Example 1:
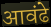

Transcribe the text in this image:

आवंढे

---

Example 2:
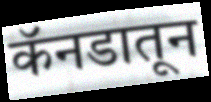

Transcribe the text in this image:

कॅनडातून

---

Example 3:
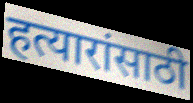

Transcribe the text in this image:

हत्यारांसाठी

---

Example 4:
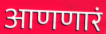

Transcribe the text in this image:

आणणारं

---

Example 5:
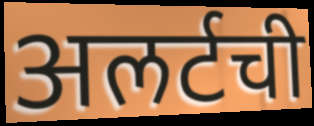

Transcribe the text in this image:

अलर्टची